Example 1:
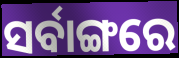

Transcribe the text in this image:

ସର୍ବାଙ୍ଗରେ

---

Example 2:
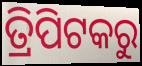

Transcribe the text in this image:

ତ୍ରିପିଟକରୁ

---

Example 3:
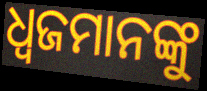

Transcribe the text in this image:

ଧ୍ୱଜମାନଙ୍କୁ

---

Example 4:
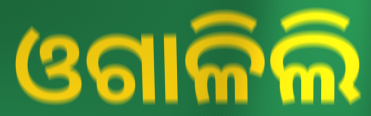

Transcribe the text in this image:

ଓଗାଳିଲି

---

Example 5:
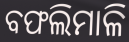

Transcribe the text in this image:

ବଫଲିମାଳି